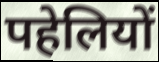
पहेलियों